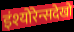
इंश्योरेन्सदेखो